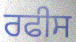
ਰਫੀਸ